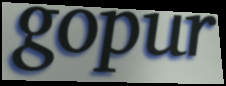
gopur